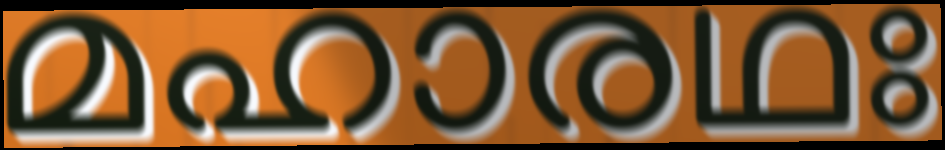
മഹാരഥഃ